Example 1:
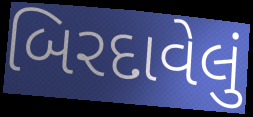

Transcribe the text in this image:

બિરદાવેલું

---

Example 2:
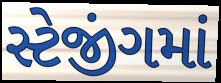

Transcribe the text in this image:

સ્ટેજીંગમાં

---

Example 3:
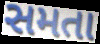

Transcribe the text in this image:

સમતા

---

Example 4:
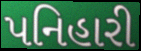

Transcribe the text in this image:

પનિહારી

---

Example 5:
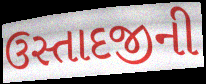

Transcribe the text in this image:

ઉસ્તાદજીની